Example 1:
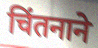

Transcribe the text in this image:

चिंतनाने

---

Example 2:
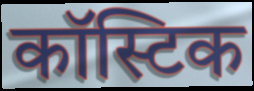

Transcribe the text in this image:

कॉस्टिक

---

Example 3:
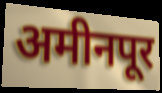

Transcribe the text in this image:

अमीनपूर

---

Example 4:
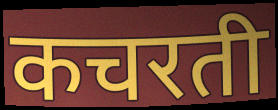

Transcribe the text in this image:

कचरती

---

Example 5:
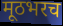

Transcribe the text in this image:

मूठभरच